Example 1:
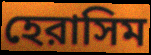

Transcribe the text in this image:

হেরাসিম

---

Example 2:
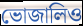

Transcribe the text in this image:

ভোজালিও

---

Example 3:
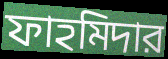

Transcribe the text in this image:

ফাহমিদার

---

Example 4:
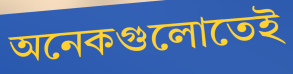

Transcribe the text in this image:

অনেকগুলোতেই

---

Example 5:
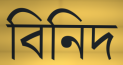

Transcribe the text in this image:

বিনিদ